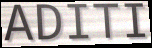
ADITI